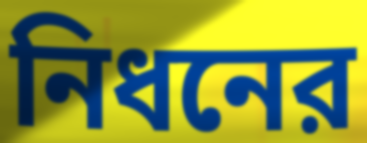
নিধনের